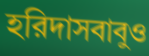
হরিদাসবাবুও